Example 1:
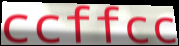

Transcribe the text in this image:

ccffcc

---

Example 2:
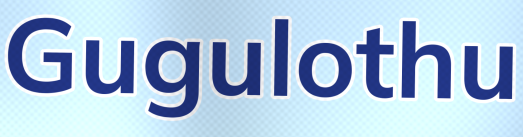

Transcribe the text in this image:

Gugulothu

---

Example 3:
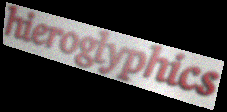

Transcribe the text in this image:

hieroglyphics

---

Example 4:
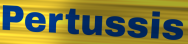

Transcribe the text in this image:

Pertussis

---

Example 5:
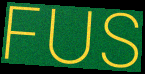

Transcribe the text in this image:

FUS